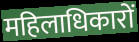
महिलाधिकारों